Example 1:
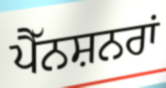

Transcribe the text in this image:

ਪੈੱਨਸ਼ਨਰਾਂ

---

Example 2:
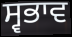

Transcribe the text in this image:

ਸ੍ਵਭਾਵ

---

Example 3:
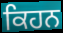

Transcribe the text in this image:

ਕਿਹਨ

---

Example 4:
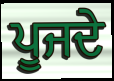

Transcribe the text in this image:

ਪੂਜਦੇ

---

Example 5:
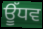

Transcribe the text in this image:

ਊੱਧਵ